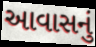
આવાસનું